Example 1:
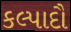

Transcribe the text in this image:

કલ્પાદૌ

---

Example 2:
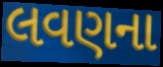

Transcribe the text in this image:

લવણના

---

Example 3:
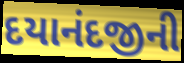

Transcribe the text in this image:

દયાનંદજીની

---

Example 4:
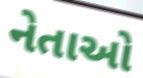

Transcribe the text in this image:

નેતાઓ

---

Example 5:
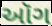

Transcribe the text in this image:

ઑગ